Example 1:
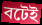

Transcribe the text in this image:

বটেই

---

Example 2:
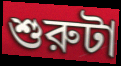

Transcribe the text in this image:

শুরুটা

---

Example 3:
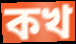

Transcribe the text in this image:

কখ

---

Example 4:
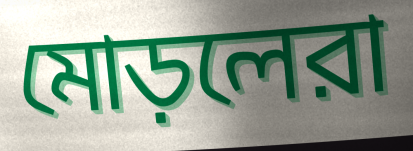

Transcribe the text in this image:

মোড়লেরা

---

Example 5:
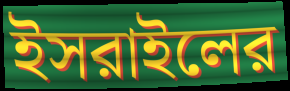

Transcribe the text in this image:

ইসরাইলের